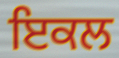
ਇਕਲ